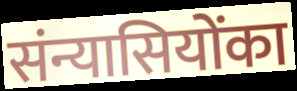
संन्यासियोंका